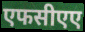
एफसीएए